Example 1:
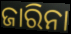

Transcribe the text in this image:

ଜାରିନା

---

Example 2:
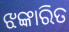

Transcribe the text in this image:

ଝଙ୍କାରିତ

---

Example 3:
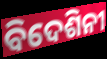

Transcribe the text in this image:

ବିଦେଶିନୀ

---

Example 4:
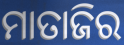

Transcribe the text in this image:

ମାତାଜିର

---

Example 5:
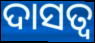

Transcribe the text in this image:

ଦାସତ୍ୱ